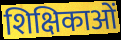
शिक्षिकाओं